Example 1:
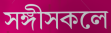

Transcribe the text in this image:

সঙ্গীসকলে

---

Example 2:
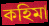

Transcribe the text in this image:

কহিমা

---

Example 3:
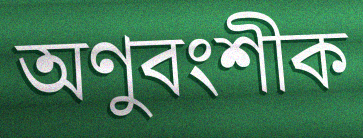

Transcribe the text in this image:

অণুবংশীক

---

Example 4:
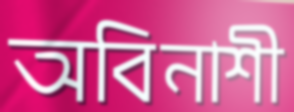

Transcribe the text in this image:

অবিনাশী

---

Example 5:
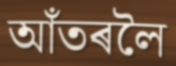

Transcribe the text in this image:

আঁতৰলৈ